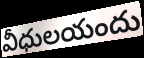
వీధులయందు